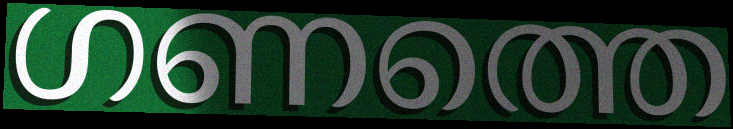
ഗണത്തെ